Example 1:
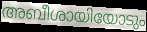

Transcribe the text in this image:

അബീശായിയോടും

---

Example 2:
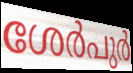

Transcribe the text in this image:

ശേർപുർ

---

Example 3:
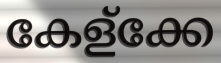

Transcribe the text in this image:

കേള്ക്കേ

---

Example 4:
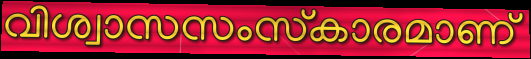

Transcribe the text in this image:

വിശ്വാസസംസ്‌കാരമാണ്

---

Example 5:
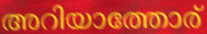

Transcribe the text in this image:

അറിയാത്തോര്